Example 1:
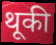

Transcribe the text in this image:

थूकी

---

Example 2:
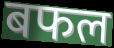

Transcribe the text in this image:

बफल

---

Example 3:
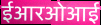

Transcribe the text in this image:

ईआरओआई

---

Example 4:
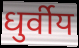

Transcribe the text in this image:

धुर्वीय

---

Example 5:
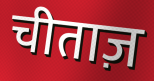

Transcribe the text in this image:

चीताज़